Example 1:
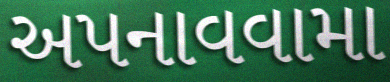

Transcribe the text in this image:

અપનાવવામા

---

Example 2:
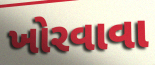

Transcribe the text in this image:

ખોરવાવા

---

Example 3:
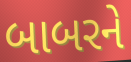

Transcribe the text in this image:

બાબરને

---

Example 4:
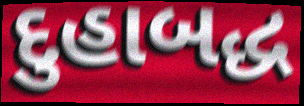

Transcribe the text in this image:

દુહાબદ્ધ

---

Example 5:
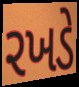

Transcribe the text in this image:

રખડે